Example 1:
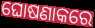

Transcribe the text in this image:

ଘୋଷଣାକରେ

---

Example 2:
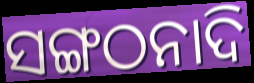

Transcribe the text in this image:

ସଙ୍ଗଠନାଦି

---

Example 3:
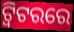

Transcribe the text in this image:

ଟ୍ବିଟରରେ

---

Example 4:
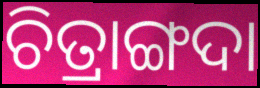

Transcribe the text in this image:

ଚିତ୍ରାଙ୍ଗଦା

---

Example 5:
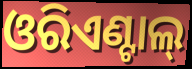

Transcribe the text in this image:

ଓରିଏଣ୍ଟାଲ୍